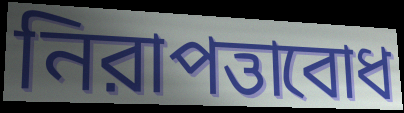
নিরাপত্তাবোধ